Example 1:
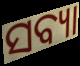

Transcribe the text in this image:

ସବ୍ୟା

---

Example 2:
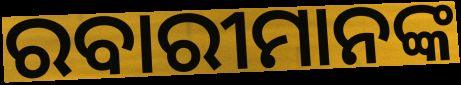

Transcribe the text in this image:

ରବାରୀମାନଙ୍କ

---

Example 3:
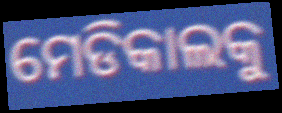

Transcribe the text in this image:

ମେଡିକାଲକୁ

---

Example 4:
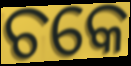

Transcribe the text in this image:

ଚକେ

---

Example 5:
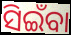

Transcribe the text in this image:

ସିଇଁବା